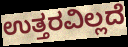
ಉತ್ತರವಿಲ್ಲದೆ